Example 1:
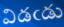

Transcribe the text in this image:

విడఁడు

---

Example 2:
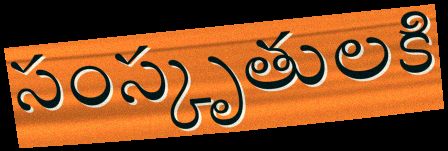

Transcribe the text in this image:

సంస్కృతులకి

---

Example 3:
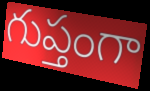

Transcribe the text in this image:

గుప్తంగా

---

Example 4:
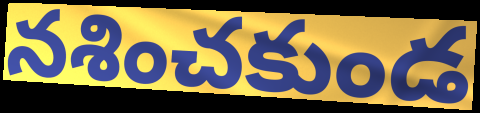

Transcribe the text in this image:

నశించకుండ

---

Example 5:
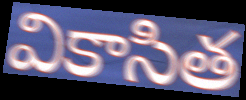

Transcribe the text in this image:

వికాసిత